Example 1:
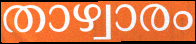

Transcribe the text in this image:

താഴ്വാരം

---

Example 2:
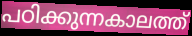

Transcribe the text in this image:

പഠിക്കുന്നകാലത്ത്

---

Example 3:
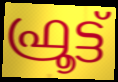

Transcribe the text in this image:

ഫ്രൂട്ട്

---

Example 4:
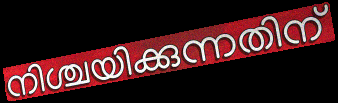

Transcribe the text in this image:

നിശ്ചയിക്കുന്നതിന്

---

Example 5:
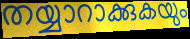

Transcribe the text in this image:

തയ്യാറാക്കുകയും